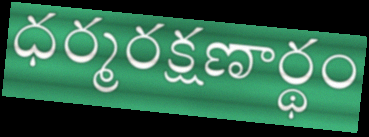
ధర్మరక్షణార్థం